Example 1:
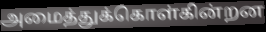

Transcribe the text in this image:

அமைத்துக்கொள்கின்றன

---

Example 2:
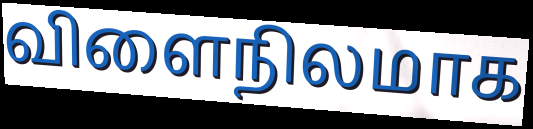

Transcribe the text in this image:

விளைநிலமாக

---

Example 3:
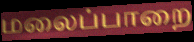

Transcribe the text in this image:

மலைப்பாறை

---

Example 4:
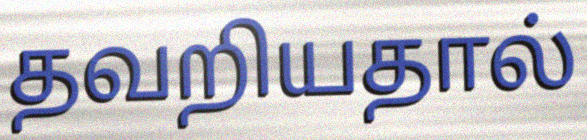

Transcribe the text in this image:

தவறியதால்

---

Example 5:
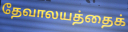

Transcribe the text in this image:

தேவாலயத்தைக்